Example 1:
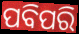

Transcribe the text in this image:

ପବିପରି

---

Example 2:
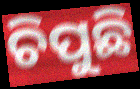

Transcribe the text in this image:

ଚିପୁଛି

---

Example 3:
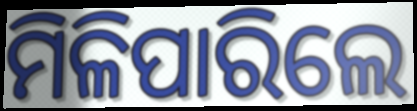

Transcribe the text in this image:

ମିଳିପାରିଲେ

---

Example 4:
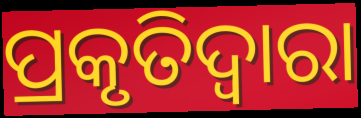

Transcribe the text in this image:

ପ୍ରକୃତିଦ୍ୱାରା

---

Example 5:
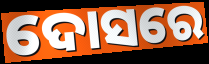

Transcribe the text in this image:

ଦୋସରେ